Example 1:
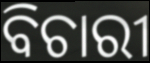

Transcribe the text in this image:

ବିଚାରୀ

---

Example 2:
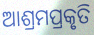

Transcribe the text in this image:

ଆଶ୍ରମପ୍ରକୃତି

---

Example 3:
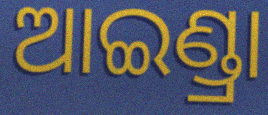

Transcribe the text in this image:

ଆଇଣ୍ଡ୍ରା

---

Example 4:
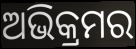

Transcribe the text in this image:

ଅଭିକ୍ରମର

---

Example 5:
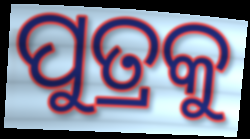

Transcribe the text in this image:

ପୁତ୍ରକୁ